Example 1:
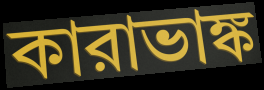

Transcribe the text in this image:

কারাভাঙ্ক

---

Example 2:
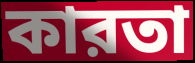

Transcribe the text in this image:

কারতা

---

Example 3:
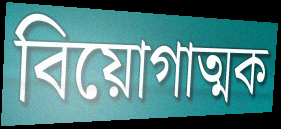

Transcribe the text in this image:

বিয়োগাত্মক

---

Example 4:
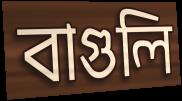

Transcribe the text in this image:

বাগুলি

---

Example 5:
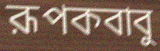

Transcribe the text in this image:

রূপকবাবু